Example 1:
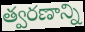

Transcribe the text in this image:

త్వరణాన్ని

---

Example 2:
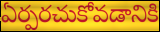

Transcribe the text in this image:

ఏర్పరచుకోవడానికి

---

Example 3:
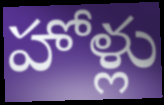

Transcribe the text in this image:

హోళ్లు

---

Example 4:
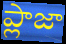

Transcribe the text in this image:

ప్లాజా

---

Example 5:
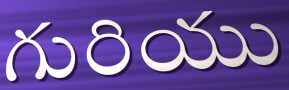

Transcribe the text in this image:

గురియు